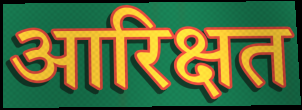
आरिक्षत